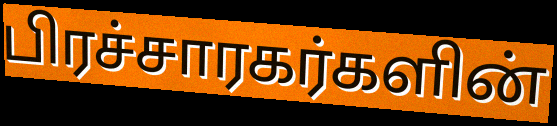
பிரச்சாரகர்களின்